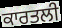
ਕਾਰਤਲੀ